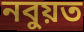
নবুয়ত